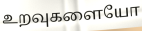
உறவுகளையோ